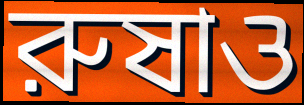
রুষাও